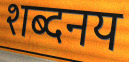
शब्दनय